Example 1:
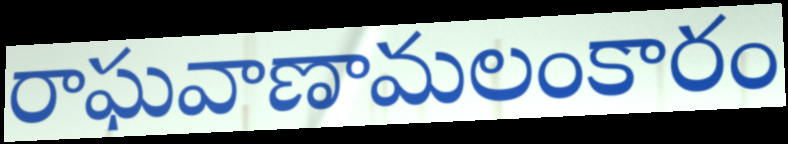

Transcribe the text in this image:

రాఘవాణామలంకారం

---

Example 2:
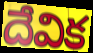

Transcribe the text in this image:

దేవిక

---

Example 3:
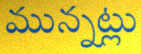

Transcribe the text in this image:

మున్నట్లు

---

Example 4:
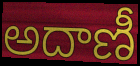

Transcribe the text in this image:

అదాణీ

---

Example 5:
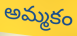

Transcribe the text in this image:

అమ్మకం